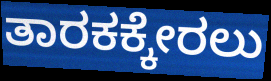
ತಾರಕಕ್ಕೇರಲು